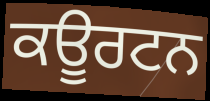
ਕਊਰਟਨ